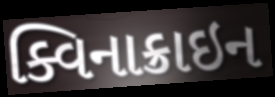
ક્વિનાક્રાઇન